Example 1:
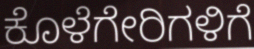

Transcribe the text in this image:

ಕೊಳೆಗೇರಿಗಳಿಗೆ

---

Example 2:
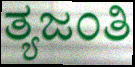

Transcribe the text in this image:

ತ್ಯಜಂತಿ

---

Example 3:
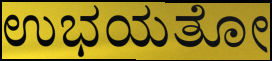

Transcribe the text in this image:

ಉಭಯತೋ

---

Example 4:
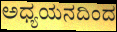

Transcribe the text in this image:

ಅಧ್ಯಯನದಿಂದ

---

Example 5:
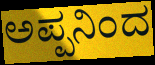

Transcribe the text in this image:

ಅಪ್ಪನಿಂದ